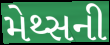
મેથ્સની